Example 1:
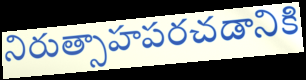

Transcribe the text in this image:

నిరుత్సాహపరచడానికి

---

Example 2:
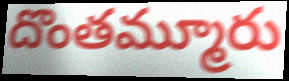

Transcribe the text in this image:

దొంతమ్మూరు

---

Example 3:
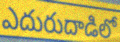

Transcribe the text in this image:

ఎదురుదాడిలో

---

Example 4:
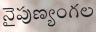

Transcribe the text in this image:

నైపుణ్యంగల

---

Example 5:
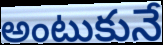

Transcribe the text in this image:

అంటుకునే